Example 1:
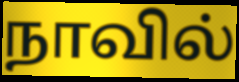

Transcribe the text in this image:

நாவில்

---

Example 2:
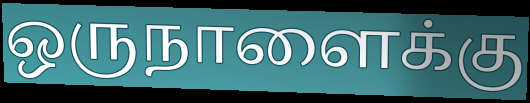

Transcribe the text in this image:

ஒருநாளைக்கு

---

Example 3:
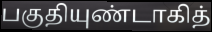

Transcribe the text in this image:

பகுதியுண்டாகித்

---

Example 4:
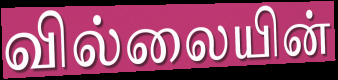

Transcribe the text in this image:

வில்லையின்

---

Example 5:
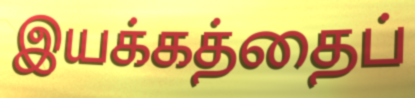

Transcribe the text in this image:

இயக்கத்தைப்